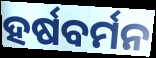
ହର୍ଷବର୍ମନ